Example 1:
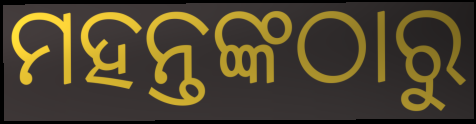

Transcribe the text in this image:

ମହନ୍ତଙ୍କଠାରୁ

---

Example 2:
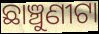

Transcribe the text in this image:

ଛାଞ୍ଚୁଣୀଟା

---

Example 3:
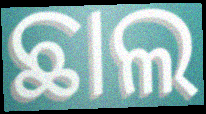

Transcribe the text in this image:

ଛାଲ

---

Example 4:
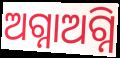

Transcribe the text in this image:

ଅଗ୍ନାଅଗ୍ନି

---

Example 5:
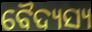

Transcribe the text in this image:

ବୈଦ୍ୟସ୍ୟ